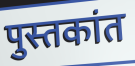
पुस्तकांत